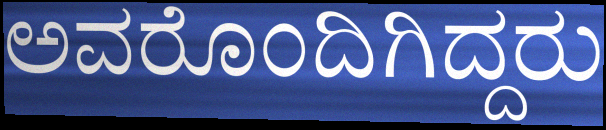
ಅವರೊಂದಿಗಿದ್ದರು